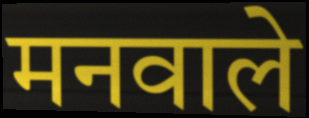
मनवाले